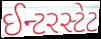
ઈન્ટરસ્ટેટ